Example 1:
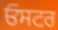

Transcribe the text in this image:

ਓਸਟਰ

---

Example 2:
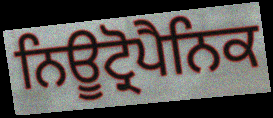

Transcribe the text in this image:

ਨਿਊਟ੍ਰੋਪੈਨਿਕ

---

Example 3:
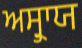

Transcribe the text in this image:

ਅਸ੍ਤ੍ਰਾਯ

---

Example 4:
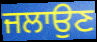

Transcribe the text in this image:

ਜਲਾਉਣ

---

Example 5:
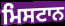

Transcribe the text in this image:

ਮਿਸਟਾਨ